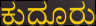
ಕುದೂರು